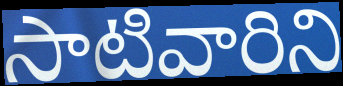
సాటివారిని